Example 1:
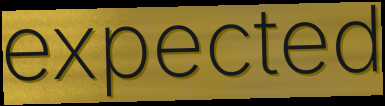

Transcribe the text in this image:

expected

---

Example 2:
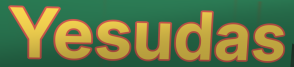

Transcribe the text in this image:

Yesudas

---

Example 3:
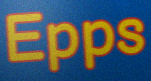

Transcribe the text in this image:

Epps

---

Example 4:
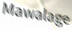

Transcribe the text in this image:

Mawalage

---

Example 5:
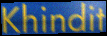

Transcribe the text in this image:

Khindit